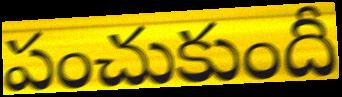
పంచుకుందీ